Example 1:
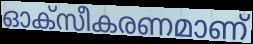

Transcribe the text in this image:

ഓക്സീകരണമാണ്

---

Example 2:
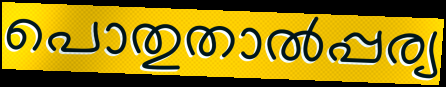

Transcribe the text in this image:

പൊതുതാൽപ്പര്യ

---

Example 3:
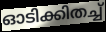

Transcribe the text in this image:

ഓടിക്കിതച്ച്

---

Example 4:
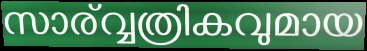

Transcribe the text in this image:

സാര്വ്വത്രികവുമായ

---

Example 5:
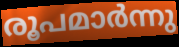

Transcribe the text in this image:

രൂപമാർന്നു